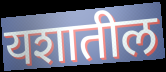
यशातील